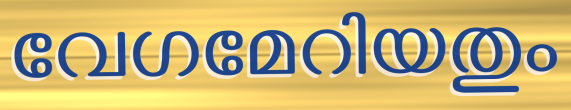
വേഗമേറിയതും